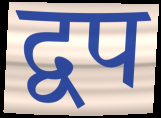
द्वप